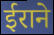
ईराने